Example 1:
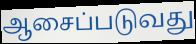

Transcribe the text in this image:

ஆசைப்படுவது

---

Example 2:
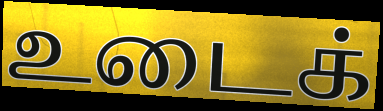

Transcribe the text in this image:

உடைக்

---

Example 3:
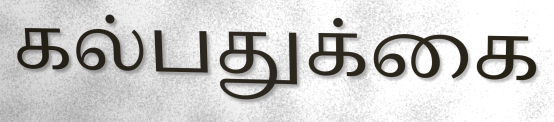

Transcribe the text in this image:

கல்பதுக்கை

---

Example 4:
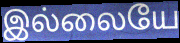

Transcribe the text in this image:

இல்லையே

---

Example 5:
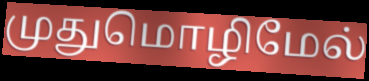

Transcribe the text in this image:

முதுமொழிமேல்